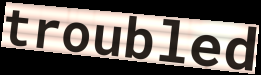
troubled